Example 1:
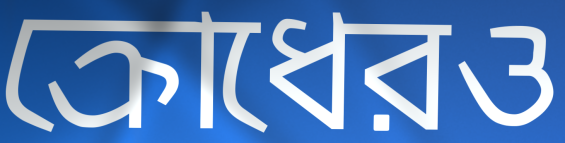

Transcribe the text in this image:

ক্রোধেরও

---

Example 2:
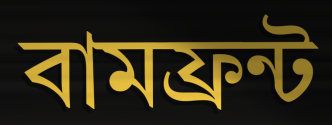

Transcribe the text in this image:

বামফ্রন্ট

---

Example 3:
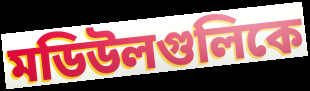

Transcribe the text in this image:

মডিউলগুলিকে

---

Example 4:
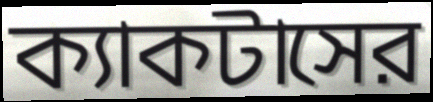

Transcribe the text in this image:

ক্যাকটাসের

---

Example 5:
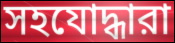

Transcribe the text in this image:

সহযোদ্ধারা